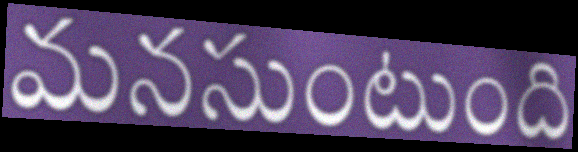
మనసుంటుంది